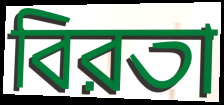
বিরতা